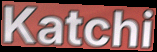
Katchi